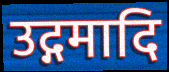
उद्गमादि